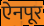
ऐनपूर